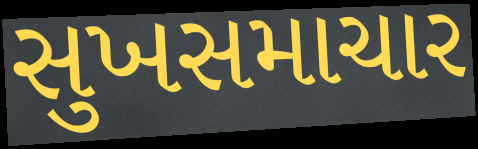
સુખસમાચાર